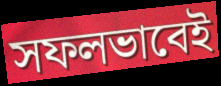
সফলভাবেই